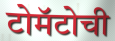
टोमॅटोची